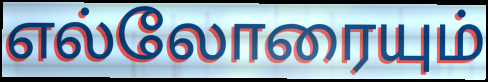
எல்லோரையும்